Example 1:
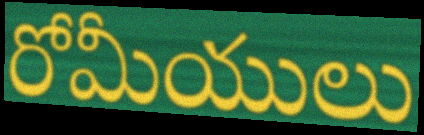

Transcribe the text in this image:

రోమీయులు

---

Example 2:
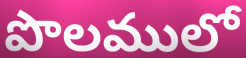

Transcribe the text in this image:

పొలములో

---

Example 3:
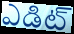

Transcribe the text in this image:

ఎడిట్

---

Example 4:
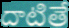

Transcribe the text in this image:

దాటితే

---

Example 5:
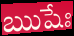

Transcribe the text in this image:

ఋషేః